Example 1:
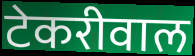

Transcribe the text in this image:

टेकरीवाल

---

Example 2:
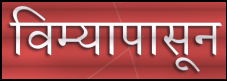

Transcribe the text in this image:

विम्यापासून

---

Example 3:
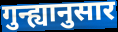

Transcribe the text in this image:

गुन्ह्यानुसार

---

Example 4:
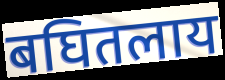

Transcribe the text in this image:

बघितलाय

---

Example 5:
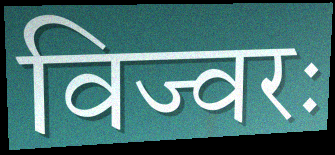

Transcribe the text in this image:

विज्वरः